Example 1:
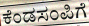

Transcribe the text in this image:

ಕೆಂಡಸಂಪಿಗೆ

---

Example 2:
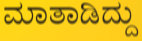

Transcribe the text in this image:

ಮಾತಾಡಿದ್ದು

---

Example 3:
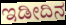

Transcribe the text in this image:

ಇಡೀದಿನ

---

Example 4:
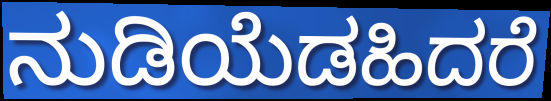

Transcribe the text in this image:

ನುಡಿಯೆಡಹಿದರೆ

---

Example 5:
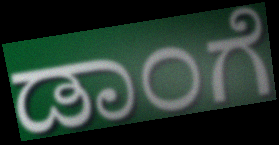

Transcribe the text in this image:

ಡಾಂಗೆ